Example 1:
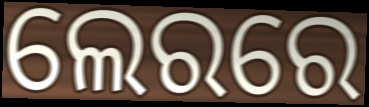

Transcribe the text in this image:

ଲେରରେ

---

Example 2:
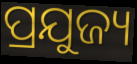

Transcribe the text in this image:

ପ୍ରଯୁଜ୍ୟ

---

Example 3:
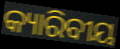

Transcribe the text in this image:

କ୍ୟାରିବୀୟ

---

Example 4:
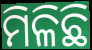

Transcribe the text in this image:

ମିଳିଛି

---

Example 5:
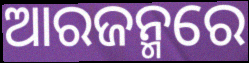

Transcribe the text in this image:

ଆରଜନ୍ମରେ